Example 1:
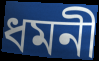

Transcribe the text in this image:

ধমনী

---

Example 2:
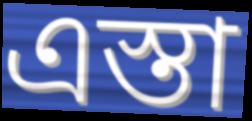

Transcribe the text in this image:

এস্তা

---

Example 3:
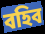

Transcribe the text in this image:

বহিব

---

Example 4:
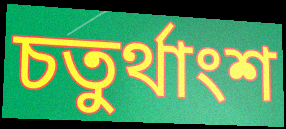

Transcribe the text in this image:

চতুর্থাংশ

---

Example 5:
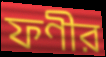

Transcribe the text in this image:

ফণীর